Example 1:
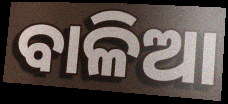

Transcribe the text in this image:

ବାଳିଆ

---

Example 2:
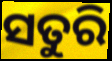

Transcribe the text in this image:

ସତୁରି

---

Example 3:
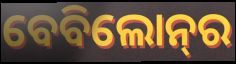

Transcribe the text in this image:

ବେବିଲୋନ୍‌ର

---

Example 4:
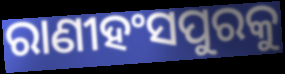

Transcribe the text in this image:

ରାଣୀହଂସପୁରକୁ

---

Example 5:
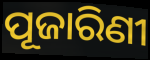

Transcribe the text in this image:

ପୂଜାରିଣୀ